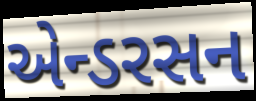
એન્ડરસન